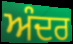
ਅੰਦਰ